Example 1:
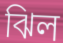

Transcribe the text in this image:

ঝিল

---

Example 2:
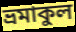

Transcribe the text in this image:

ভ্রমাকুল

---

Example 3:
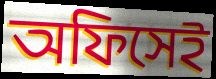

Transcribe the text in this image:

অফিসেই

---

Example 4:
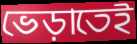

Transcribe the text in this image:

ভেড়াতেই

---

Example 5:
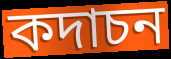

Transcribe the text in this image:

কদাচন